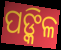
ପଙ୍କିଳ